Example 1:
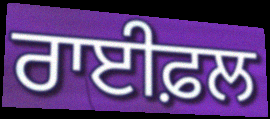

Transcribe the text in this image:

ਰਾਈਫ਼ਲ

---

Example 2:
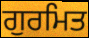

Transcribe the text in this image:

ਗੁਰਮਿਤ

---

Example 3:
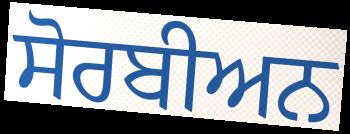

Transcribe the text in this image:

ਸੋਰਬੀਅਨ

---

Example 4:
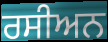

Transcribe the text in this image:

ਰਸੀਅਨ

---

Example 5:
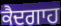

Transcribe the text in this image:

ਕੈਦਗਾਹ